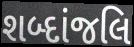
શબ્દાંજલિ